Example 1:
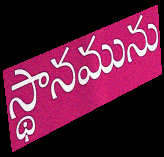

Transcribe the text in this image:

స్థానమును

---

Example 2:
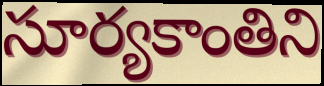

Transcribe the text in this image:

సూర్యకాంతిని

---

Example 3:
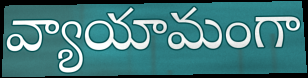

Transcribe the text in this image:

వ్యాయామంగా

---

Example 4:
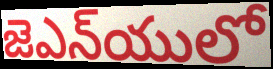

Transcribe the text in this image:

జెఎన్‌యులో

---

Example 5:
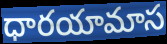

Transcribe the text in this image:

ధారయామాస